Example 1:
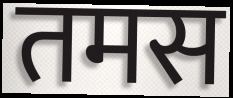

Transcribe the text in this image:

तमस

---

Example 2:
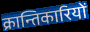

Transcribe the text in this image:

क्रान्तिकारियों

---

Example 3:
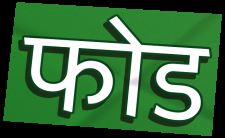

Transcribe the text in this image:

फोड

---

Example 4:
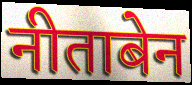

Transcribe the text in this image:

नीताबेन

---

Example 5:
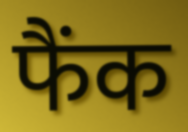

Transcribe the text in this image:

फैंक